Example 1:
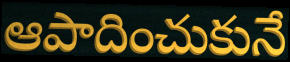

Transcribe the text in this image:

ఆపాదించుకునే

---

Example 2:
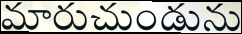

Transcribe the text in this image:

మారుచుండును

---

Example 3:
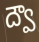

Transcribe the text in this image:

ద్వౌ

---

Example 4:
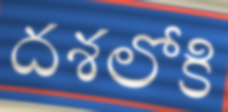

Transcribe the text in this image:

దశలోకి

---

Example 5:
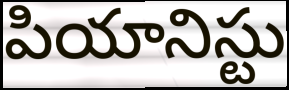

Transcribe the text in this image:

పియానిస్టు